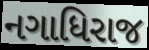
નગાધિરાજ